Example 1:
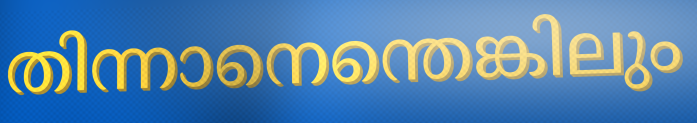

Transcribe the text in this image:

തിന്നാനെന്തെങ്കിലും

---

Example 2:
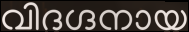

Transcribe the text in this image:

വിദഗ്ദനായ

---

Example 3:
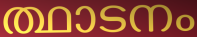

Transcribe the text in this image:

ത്ഥാടനം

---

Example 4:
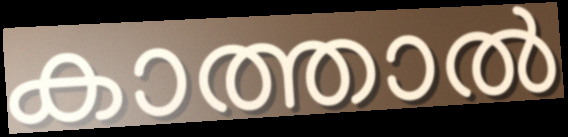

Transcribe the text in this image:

കാത്താൽ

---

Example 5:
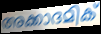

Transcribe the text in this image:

അക്കാദമിക്